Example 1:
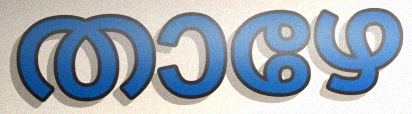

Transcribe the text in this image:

താഴേ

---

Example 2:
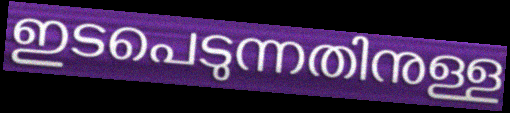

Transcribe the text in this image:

ഇടപെടുന്നതിനുള്ള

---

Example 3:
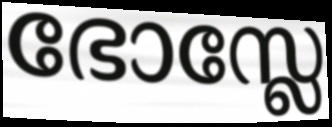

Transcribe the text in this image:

ഭോസ്ലേ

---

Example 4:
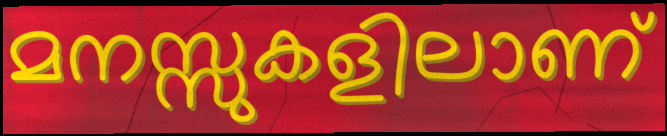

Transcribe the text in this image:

മനസ്സുകളിലാണ്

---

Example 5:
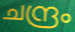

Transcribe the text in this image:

ചന്ദ്രം